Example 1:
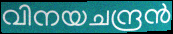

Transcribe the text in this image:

വിനയചന്ദ്രൻ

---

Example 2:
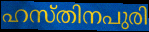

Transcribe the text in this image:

ഹസ്തിനപുരി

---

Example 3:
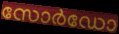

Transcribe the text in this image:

സോർഡോ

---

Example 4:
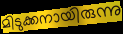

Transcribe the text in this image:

മിടുക്കനായിരുന്നു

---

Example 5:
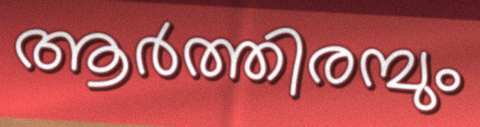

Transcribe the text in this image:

ആർത്തിരമ്പും